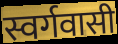
स्वर्गवासी